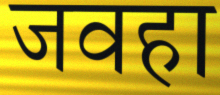
जवहा